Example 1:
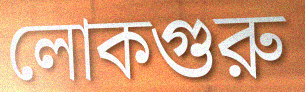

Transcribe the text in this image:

লোকগুরু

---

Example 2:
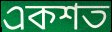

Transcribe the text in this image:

একশত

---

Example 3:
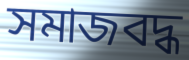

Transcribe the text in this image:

সমাজবদ্ধ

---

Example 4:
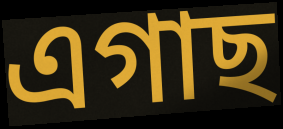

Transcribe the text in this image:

এগাছ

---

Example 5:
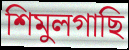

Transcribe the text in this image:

শিমুলগাছি